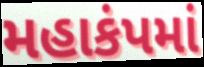
મહાકંપમાં